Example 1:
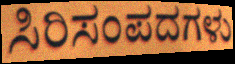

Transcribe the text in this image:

ಸಿರಿಸಂಪದಗಳು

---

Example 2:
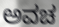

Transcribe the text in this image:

ಅವಚ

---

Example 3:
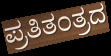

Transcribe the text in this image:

ಪ್ರತಿತಂತ್ರದ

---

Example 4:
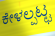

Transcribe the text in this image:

ಕೇಳಲ್ಪಟ್ಟ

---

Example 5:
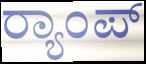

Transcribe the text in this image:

ರ‍್ಯಾಂಪ್